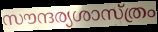
സൗന്ദര്യശാസ്ത്രം